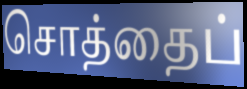
சொத்தைப்